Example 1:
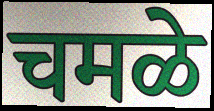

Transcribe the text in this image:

चमळे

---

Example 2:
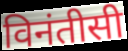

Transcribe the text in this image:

विनंतीसी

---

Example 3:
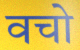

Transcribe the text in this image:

वचो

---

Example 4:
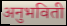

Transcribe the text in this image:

अनुभविती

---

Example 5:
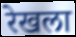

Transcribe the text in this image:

रेखला